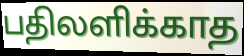
பதிலளிக்காத